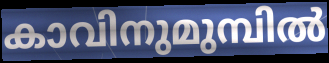
കാവിനുമുമ്പിൽ